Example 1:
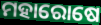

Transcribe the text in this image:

ମହାରୋଷେ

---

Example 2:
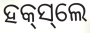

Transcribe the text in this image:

ହକ୍‌ସ୍‌ଲେ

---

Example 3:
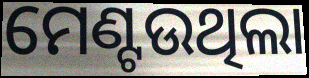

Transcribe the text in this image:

ମେଣ୍ଟଉଥିଲା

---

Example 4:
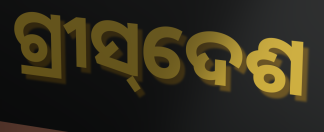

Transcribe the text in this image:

ଗ୍ରୀସ୍‌ଦେଶ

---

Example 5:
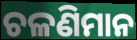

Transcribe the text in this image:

ଚଳଣିମାନ